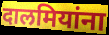
दालमियांना